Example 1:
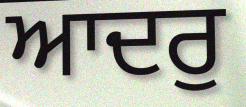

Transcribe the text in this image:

ਆਦਰੁ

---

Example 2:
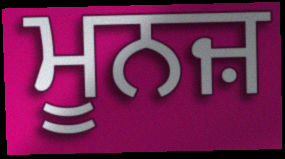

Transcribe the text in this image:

ਮੂਨਜ਼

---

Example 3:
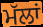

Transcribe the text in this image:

ਮੱਲਾਂ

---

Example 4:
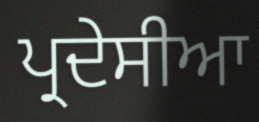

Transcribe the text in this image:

ਪ੍ਰਦੇਸੀਆ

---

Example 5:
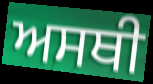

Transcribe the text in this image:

ਅਸਥੀ